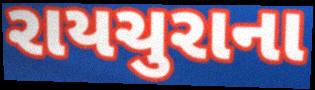
રાયચુરાના